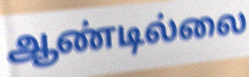
ஆண்டில்லை